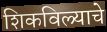
शिकविल्याचे